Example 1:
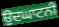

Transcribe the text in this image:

ਉਦਘਾਟਨੀ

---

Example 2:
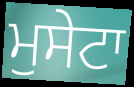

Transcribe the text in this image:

ਮੁਸੇਟਾ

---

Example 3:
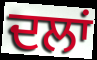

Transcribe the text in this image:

ਦਲਾਂ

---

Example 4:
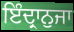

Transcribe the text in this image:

ਇੰਦ੍ਰਾਨੁਜਾ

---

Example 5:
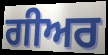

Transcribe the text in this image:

ਗੀਅਰ